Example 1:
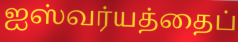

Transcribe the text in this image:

ஐஸ்வர்யத்தைப்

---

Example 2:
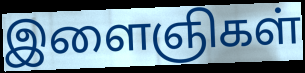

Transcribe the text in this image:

இளைஞிகள்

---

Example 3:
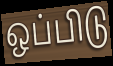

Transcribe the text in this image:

ஒப்பிடு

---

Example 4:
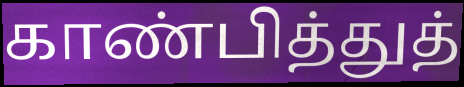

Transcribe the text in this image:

காண்பித்துத்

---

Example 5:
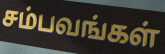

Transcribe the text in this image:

சம்பவங்கள்